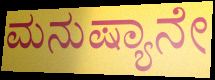
ಮನುಷ್ಯಾನೇ